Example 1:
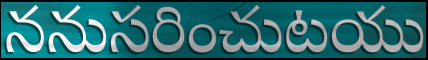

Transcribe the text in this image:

ననుసరించుటయు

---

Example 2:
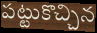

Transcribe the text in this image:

పట్టుకొచ్చిన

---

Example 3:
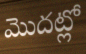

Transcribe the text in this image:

మొదట్లో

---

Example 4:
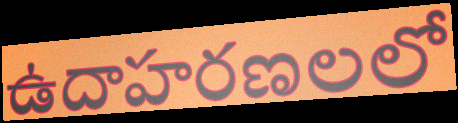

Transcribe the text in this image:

ఉదాహరణలలో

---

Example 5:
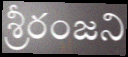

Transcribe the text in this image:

శ్రీరంజని